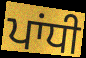
ਪਾਂਧੀ